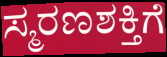
ಸ್ಮರಣಶಕ್ತಿಗೆ